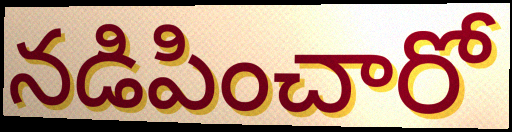
నడిపించారో